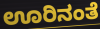
ಊರಿನಂತೆ